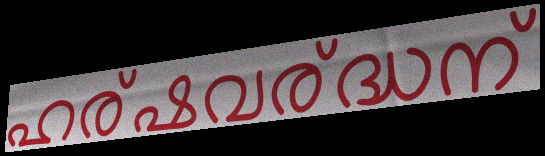
ഹര്ഷവര്ദ്ധന്